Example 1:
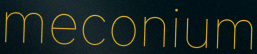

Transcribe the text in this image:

meconium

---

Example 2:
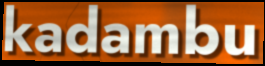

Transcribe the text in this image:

kadambu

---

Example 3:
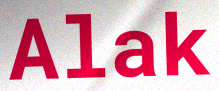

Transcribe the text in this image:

Alak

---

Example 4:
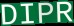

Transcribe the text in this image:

DIPR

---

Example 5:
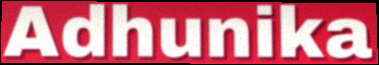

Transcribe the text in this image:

Adhunika